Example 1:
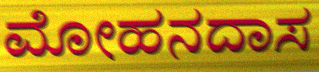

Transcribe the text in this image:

ಮೋಹನದಾಸ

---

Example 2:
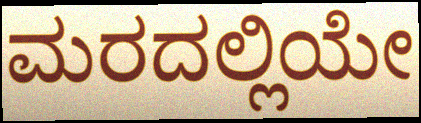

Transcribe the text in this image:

ಮರದಲ್ಲಿಯೇ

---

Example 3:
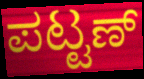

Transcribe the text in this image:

ಪಟ್ಟಣ್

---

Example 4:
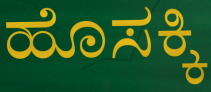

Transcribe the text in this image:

ಹೊಸಕ್ಕಿ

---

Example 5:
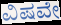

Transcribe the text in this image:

ವಿಷವೇ